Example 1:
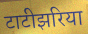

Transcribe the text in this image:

टाटीझरिया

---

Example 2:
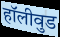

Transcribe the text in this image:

हॉलीवुड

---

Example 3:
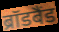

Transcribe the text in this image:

ब्रॉडबैंड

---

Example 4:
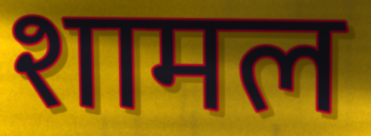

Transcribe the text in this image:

शामल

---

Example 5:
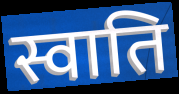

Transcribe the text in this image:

स्वाति